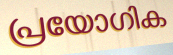
പ്രയോഗിക